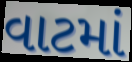
વાટમાં